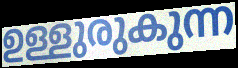
ഉള്ളുരുകുന്ന